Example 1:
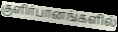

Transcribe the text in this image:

குளிர்பானங்களில்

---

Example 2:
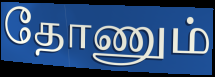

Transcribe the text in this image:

தோணும்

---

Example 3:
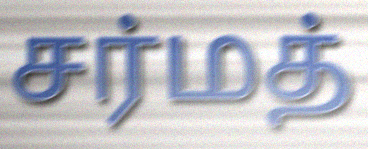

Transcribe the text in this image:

சர்மத்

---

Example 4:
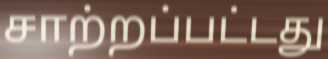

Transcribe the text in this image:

சாற்றப்பட்டது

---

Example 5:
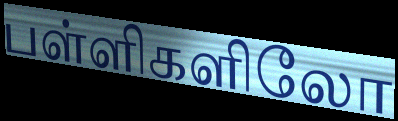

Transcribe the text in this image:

பள்ளிகளிலோ